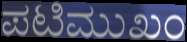
ಪಟಿಮುಖಂ